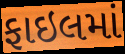
ફાઇલમાં